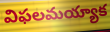
విఫలమయ్యాక